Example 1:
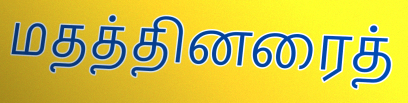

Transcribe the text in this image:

மதத்தினரைத்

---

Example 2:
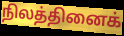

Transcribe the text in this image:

நிலத்தினைக்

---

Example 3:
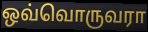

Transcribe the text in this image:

ஒவ்வொருவரா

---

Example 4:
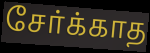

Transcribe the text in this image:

சேர்க்காத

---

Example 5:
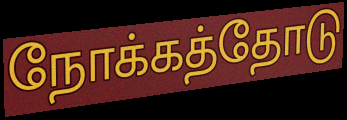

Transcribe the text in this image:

நோக்கத்தோடு